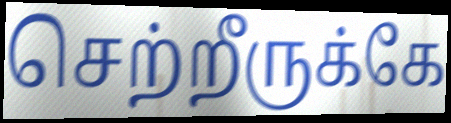
செற்றீருக்கே